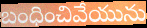
బంధించివేయును